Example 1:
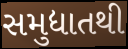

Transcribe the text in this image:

સમુદ્યાતથી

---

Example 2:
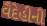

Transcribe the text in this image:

વૈદેહીની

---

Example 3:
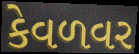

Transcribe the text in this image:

કેવળવર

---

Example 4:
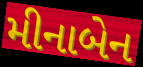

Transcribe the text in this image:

મીનાબેન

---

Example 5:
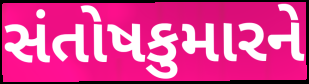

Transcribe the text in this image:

સંતોષકુમારને